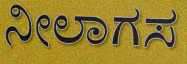
ನೀಲಾಗಸ